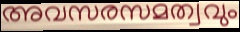
അവസരസമത്വവും